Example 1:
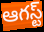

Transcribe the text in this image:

ఆగస్ట్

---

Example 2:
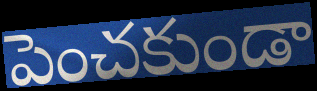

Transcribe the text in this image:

పెంచకుండా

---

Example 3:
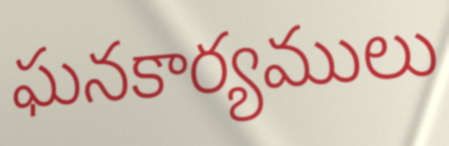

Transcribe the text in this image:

ఘనకార్యములు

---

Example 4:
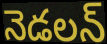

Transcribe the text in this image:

నెడలన్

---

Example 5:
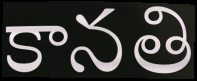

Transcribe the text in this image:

కానతి